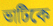
ভাটিকে